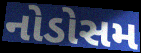
નોડોસમ